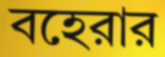
বহেরার